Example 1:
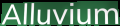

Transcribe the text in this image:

Alluvium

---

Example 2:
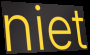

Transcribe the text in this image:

niet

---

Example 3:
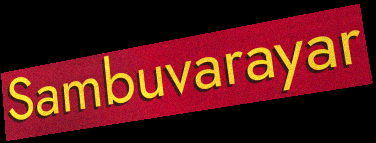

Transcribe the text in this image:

Sambuvarayar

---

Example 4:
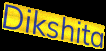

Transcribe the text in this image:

Dikshita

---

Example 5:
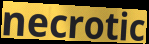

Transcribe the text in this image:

necrotic